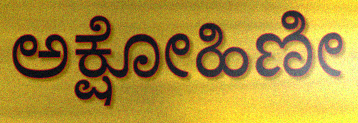
ಅಕ್ಷೋಹಿಣೀ